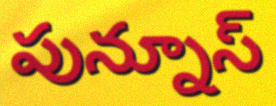
పున్నూస్